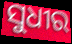
ସୁଧୀର